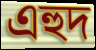
এহুদ